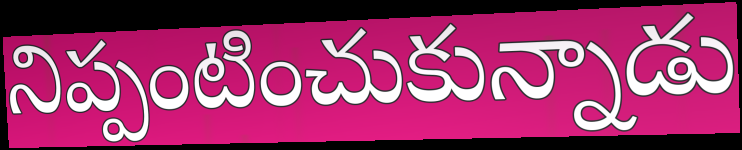
నిప్పంటించుకున్నాడు